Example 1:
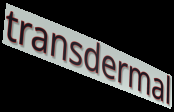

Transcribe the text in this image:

transdermal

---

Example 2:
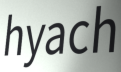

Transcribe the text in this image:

hyach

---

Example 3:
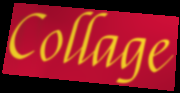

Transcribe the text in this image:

Collage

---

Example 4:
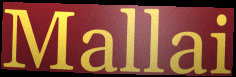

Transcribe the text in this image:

Mallai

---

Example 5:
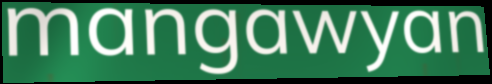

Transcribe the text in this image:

mangawyan